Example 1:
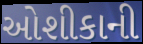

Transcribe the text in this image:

ઓશીકાની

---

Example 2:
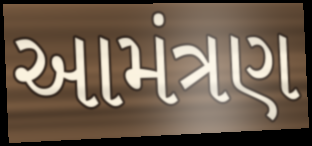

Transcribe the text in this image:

આમંત્રણ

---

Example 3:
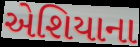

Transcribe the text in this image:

એશિયાના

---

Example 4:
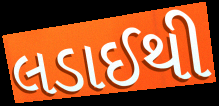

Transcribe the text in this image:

લડાઈથી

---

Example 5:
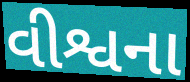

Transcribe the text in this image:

વીશ્વના